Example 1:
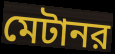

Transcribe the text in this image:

মেটানর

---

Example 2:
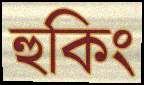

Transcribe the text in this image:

হুকিং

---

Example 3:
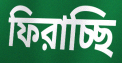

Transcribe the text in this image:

ফিরাচ্ছি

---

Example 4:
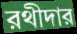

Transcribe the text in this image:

রথীদার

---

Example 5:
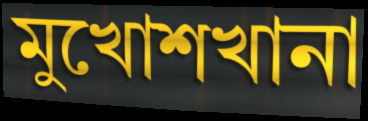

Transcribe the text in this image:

মুখোশখানা